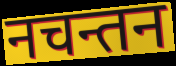
नचन्तन